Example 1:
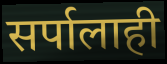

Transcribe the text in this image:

सर्पालाही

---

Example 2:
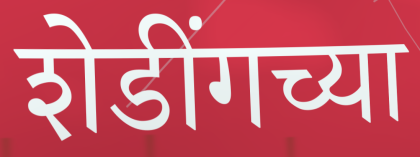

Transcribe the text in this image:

शेडींगच्या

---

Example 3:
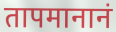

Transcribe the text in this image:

तापमानानं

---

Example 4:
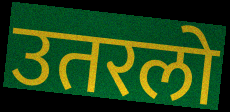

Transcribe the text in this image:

उतरलो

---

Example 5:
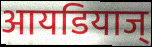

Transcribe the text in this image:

आयडियाज्